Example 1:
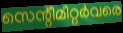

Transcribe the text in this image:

സെന്റീമീറ്റർവരെ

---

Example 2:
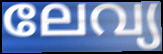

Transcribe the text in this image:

ലേവ്യ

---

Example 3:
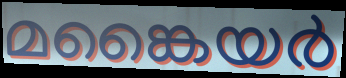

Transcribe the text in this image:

മങ്കൈയർ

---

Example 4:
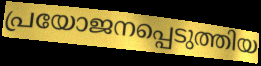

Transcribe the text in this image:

പ്രയോജനപ്പെടുത്തിയ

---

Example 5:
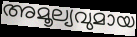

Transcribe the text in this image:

അമൂല്യവുമായ